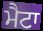
ਮੈਟਾ